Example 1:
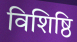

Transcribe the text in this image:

विशिष्ठि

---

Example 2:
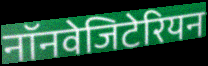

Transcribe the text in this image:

नॉनवेजिटेरियन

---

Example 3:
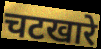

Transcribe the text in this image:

चटखारे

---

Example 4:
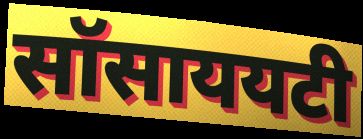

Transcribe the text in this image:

सॉसाययटी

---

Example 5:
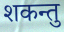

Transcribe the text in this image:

शकन्तु